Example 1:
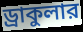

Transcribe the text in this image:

ড্রাকুলার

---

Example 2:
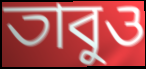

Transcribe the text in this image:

তাবুও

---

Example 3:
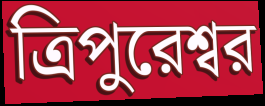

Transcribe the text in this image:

ত্রিপুরেশ্বর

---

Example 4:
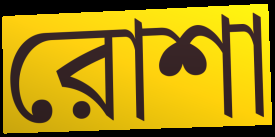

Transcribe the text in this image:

রোশা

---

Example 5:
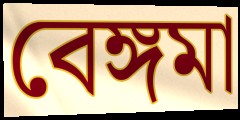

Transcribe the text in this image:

বেঙ্গমা